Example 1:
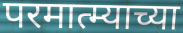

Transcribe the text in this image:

परमात्म्याच्या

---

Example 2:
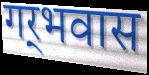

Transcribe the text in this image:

गर्भवास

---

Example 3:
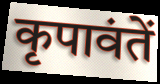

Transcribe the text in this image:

कृपावंतें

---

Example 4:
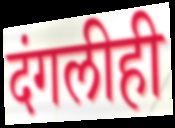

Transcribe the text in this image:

दंगलीही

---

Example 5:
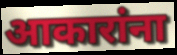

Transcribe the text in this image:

आकारांना